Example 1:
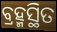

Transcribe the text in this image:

ବ୍ରହ୍ମସ୍ଥିତ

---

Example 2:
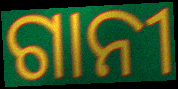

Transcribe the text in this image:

ଗାନୀ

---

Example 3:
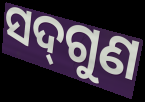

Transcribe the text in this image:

ସଦ୍‌ଗୁଣ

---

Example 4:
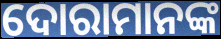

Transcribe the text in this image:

ଦୋରାମାନଙ୍କ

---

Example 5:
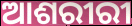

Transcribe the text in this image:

ଆଶରୀରୀ